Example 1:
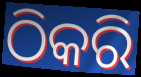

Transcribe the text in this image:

ଠିକରି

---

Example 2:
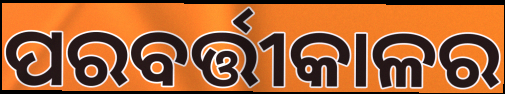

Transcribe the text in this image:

ପରବର୍ତ୍ତୀକାଳର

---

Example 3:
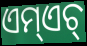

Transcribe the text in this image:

ଏମ୍ଏଚ୍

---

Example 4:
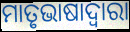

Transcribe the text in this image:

ମାତୃଭାଷାଦ୍ୱାରା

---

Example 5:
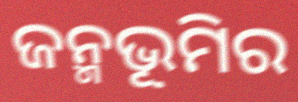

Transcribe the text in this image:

ଜନ୍ମଭୂମିର